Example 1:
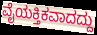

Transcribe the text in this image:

ವೈಯಕ್ತಿಕವಾದದ್ದು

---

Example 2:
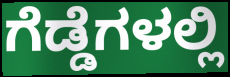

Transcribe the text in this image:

ಗೆಡ್ಡೆಗಳಲ್ಲಿ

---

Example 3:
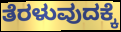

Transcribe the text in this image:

ತೆರಳುವುದಕ್ಕೆ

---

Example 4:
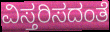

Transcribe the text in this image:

ವಿಸ್ತರಿಸದಂತೆ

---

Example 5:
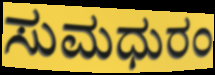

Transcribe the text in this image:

ಸುಮಧುರಂ